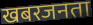
खबरजनता